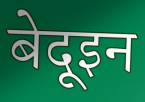
बेदूइन